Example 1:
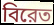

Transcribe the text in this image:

বিরেত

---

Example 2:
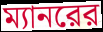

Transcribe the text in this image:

ম্যানরের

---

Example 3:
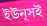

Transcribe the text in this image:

ইউনূসই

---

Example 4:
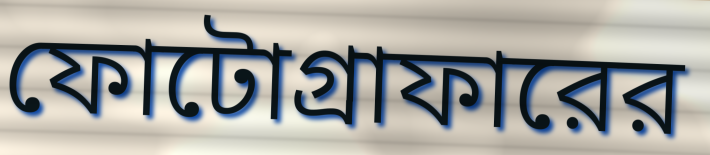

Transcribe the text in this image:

ফোটোগ্রাফারের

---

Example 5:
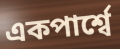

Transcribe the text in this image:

একপার্শ্বে